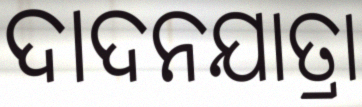
ଦାଦନଯାତ୍ରା